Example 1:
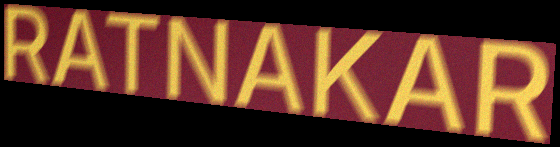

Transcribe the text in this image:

RATNAKAR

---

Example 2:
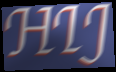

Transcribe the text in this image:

HIJ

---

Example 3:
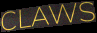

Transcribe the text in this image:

CLAWS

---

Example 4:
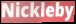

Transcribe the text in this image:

Nickleby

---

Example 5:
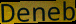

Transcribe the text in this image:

Deneb